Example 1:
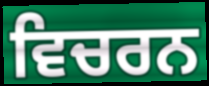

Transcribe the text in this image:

ਵਿਚਰਨ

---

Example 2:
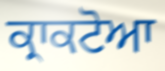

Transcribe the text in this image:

ਕ੍ਰਾਕਟੋਆ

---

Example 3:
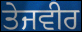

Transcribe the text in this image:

ਤੇਜਵੀਰ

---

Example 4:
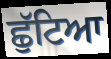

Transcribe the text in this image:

ਛੁੱਟਿਆ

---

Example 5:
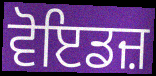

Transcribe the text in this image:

ਵੋਇਡਜ਼